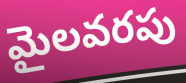
మైలవరపు